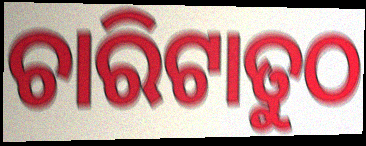
ଚାରିଟାତୁଠ